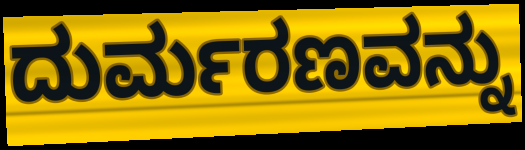
ದುರ್ಮರಣವನ್ನು